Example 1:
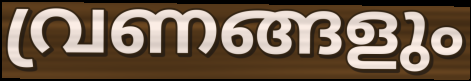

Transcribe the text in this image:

വ്രണങ്ങളും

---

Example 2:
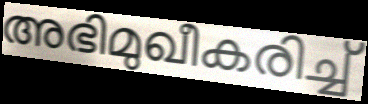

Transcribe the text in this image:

അഭിമുഖീകരിച്ച്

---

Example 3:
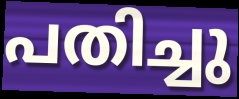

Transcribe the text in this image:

പതിച്ചു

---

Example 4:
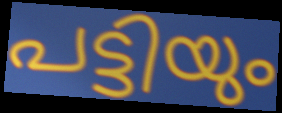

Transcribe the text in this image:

പട്ടിയും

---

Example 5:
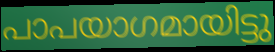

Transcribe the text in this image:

പാപയാഗമായിട്ടു